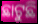
ଛାଟୁଛି